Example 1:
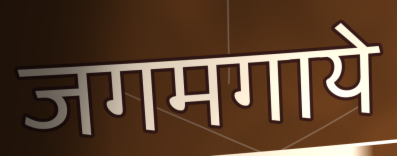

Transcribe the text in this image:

जगमगाये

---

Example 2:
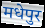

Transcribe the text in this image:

मधेपुर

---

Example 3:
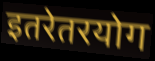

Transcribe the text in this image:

इतरेतरयोग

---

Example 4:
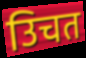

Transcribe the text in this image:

उिचत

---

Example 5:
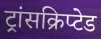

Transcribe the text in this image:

ट्रांसक्रिप्टेड